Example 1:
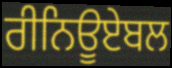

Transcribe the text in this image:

ਰੀਨਿਊਏਬਲ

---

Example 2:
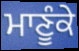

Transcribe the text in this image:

ਮਾਣੂੰਕੇ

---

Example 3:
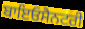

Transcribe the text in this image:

ਬਾਇਓਸੈਨਟਰੀ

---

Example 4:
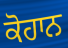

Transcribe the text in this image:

ਕੋਹਾਨ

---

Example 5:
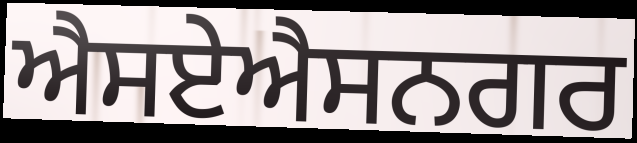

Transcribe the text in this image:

ਐਸਏਐਸਨਗਰ